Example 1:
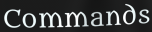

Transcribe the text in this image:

Commands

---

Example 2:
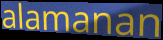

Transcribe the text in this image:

alamanan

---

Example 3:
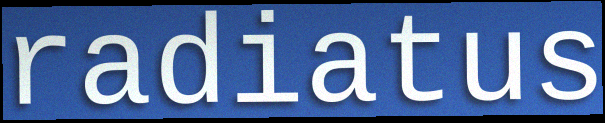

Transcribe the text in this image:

radiatus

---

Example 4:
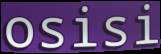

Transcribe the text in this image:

osisi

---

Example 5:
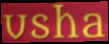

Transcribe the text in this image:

usha